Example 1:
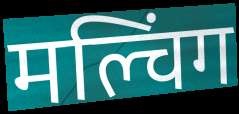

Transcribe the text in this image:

मल्चिंग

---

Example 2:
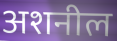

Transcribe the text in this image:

अशनील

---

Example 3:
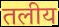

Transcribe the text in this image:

तलीय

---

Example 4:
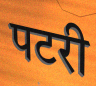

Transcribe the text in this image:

पटरी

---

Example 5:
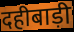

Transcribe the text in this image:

दहीबाड़ी